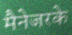
मैनेजरके